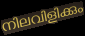
നിലവിളിക്കും